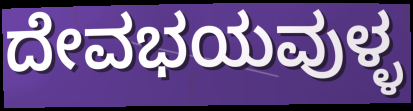
ದೇವಭಯವುಳ್ಳ